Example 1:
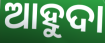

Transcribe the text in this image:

ଆହୁଦା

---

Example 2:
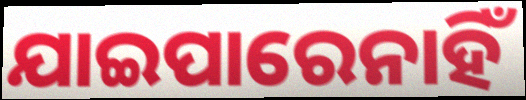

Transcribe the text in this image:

ଯାଇପାରେନାହିଁ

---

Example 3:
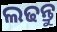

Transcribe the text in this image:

ଲଢନ୍ତୁ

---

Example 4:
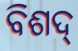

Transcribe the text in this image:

ବିଶଦ୍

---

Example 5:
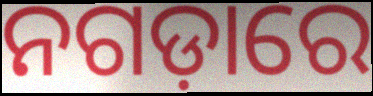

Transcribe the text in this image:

ନଗଡ଼ାରେ